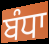
ਬੰਧਾ